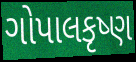
ગોપાલકૃષ્ણ